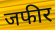
जफीर